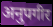
अनुपगीर